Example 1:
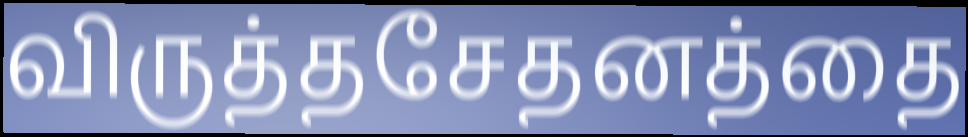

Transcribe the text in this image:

விருத்தசேதனத்தை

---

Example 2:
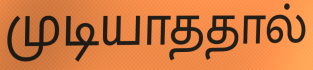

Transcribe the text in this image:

முடியாததால்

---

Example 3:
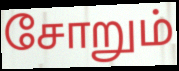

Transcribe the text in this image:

சோறும்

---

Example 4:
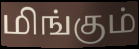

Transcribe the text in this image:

மிங்கும்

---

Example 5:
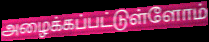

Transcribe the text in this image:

அழைக்கப்பட்டுள்ளோம்